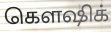
கௌஷிக்